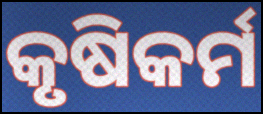
କୃଷିକର୍ମ